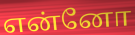
என்னோ